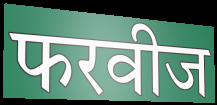
फरवीज